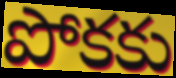
పోకకు